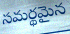
సమర్థమైన